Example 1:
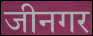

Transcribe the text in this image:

जीनगर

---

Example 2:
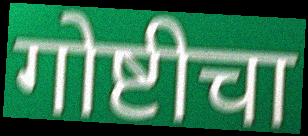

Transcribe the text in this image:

गोष्टीचा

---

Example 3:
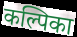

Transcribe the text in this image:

कल्पिका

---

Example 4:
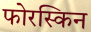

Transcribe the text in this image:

फोरस्किन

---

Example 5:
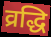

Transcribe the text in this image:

व्रद्धि